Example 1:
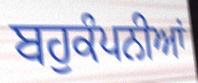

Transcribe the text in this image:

ਬਹੁਕੰਪਨੀਆਂ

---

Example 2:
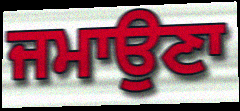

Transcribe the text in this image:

ਜਮਾਉਣਾ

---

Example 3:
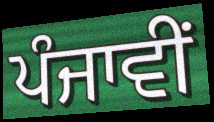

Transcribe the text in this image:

ਪੰਜਾਵੀਂ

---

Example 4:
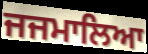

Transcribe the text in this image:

ਜਜਮਾਲਿਆ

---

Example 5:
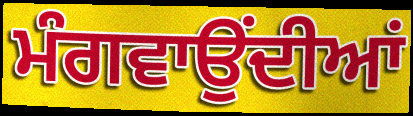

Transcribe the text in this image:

ਮੰਗਵਾਉਂਦੀਆਂ